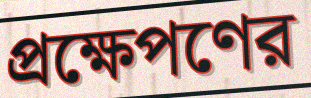
প্রক্ষেপণের